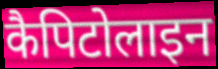
कैपिटोलाइन